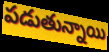
పడుతున్నాయి